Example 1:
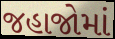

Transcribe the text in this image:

જહાજોમાં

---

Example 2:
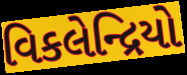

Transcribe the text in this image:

વિકલેન્દ્રિયો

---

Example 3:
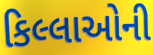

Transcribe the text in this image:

કિલ્લાઓની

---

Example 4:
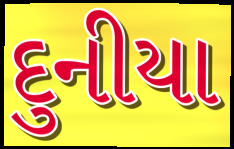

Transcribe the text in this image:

દુનીયા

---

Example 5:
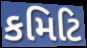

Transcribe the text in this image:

કમિટિ